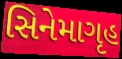
સિનેમાગૃહ